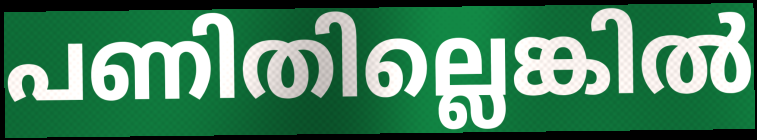
പണിതില്ലെങ്കിൽ